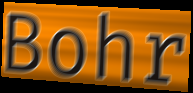
Bohr